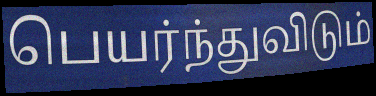
பெயர்ந்துவிடும்